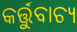
କର୍ତ୍ତୁବାଚ୍ୟ